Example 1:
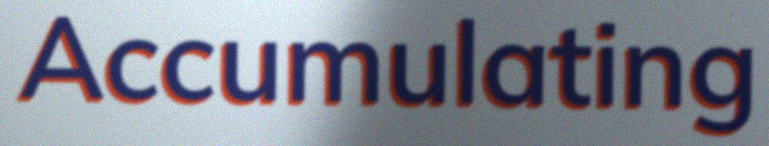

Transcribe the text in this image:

Accumulating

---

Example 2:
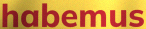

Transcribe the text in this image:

habemus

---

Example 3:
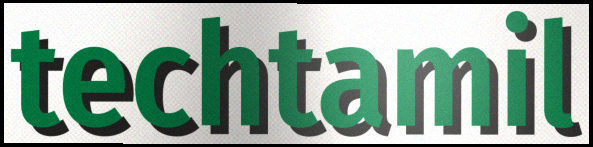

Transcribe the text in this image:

techtamil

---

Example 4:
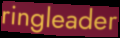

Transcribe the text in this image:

ringleader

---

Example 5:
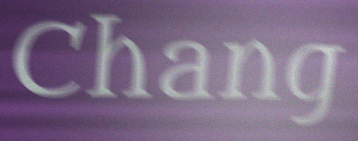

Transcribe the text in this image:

Chang